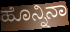
ಹೊನ್ನಿನಾ